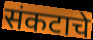
संकटाचे